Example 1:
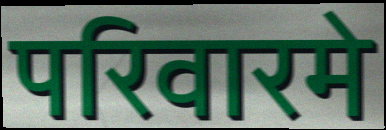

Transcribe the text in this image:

परिवारमे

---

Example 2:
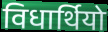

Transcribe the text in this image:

विधार्थियो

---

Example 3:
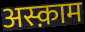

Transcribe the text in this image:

अस्क़ाम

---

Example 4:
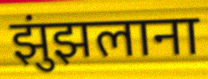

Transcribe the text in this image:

झुंझलाना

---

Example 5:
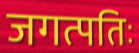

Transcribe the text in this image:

जगत्पतिः